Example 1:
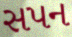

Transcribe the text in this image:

સપન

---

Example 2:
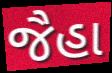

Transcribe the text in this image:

જૈહા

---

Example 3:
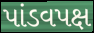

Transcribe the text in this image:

પાંડવપક્ષ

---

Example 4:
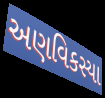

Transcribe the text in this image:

અણવિકસ્યા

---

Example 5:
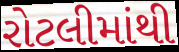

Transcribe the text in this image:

રોટલીમાંથી